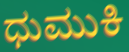
ಧುಮುಕಿ